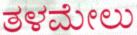
ತಳಮೇಲು